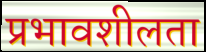
प्रभावशीलता